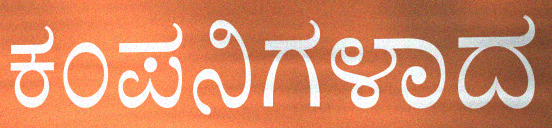
ಕಂಪನಿಗಳಾದ